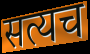
सत्यच